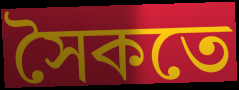
সৈকতে